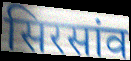
सिरसांव